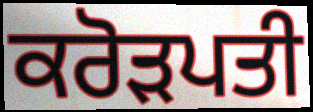
ਕਰੋੜਪਤੀ